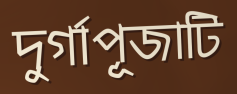
দুর্গাপূজাটি